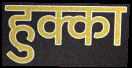
हुक्का